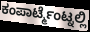
ಕಂಪಾರ್ಟ್ಮೆಂಟ್ನಲ್ಲಿ